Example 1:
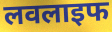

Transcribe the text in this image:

लवलाइफ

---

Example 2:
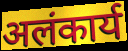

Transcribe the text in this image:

अलंकार्य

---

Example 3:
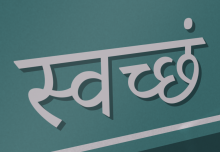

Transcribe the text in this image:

स्वच्छं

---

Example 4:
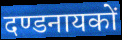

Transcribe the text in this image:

दण्डनायकों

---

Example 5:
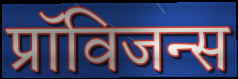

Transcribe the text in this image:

प्रॉविजन्स